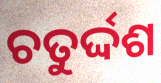
ଚତୁର୍ଦ୍ଦଶ